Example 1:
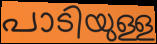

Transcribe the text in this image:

പാടിയുള്ള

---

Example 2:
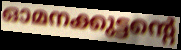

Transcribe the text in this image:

ഓമനക്കുട്ടന്റെ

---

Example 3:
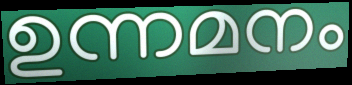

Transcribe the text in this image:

ഉന്നമനം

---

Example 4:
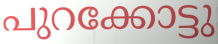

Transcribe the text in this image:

പുറക്കോട്ടു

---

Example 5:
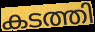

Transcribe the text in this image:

കടത്തി